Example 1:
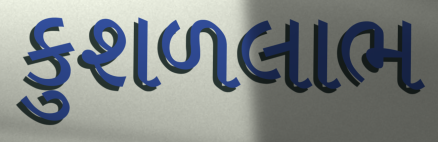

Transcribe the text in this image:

કુશળલાભ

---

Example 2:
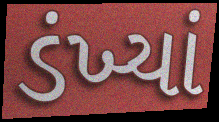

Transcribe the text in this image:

ડંખ્યાં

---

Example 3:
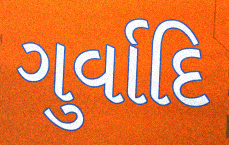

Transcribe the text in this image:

ગુર્વાદિ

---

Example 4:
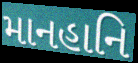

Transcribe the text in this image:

માનહાનિ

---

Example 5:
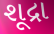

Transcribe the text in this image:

શૂદ્રા